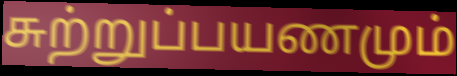
சுற்றுப்பயணமும்